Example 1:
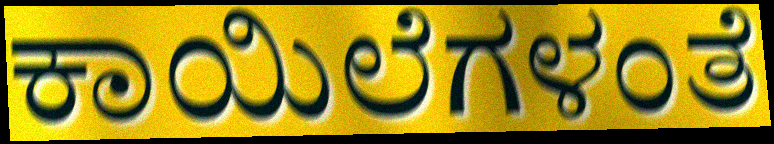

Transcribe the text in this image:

ಕಾಯಿಲೆಗಳಂತೆ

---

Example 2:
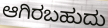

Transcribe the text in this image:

ಆಗಿರಬಹುದು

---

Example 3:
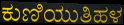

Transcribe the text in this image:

ಕುಣಿಯುತಿಹಳ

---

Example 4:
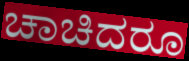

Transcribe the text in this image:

ಚಾಚಿದರೂ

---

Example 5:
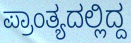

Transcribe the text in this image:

ಪ್ರಾಂತ್ಯದಲ್ಲಿದ್ದ